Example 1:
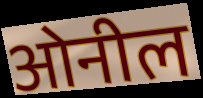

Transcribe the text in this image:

ओनील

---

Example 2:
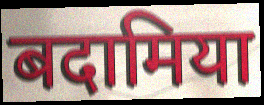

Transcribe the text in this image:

बदामिया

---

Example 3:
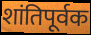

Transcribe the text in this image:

शांतिपूर्वक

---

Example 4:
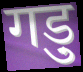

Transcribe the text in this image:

गड़ु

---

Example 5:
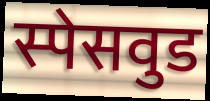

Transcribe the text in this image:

स्पेसवुड